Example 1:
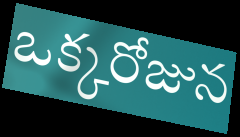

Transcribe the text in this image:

ఒక్కరోజున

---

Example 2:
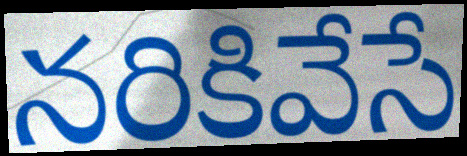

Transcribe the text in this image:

నరికివేసే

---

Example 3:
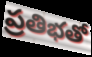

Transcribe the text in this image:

ప్రతిభతో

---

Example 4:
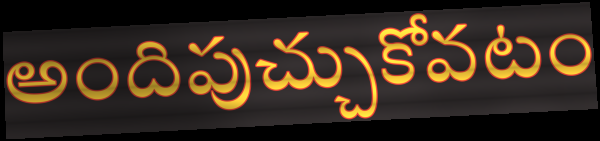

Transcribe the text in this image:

అందిపుచ్చుకోవటం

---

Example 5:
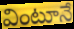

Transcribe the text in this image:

వింటూనే